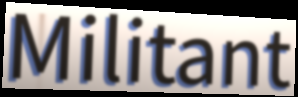
Militant